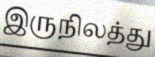
இருநிலத்து